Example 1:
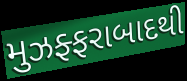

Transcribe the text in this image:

મુઝફ્ફરાબાદથી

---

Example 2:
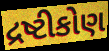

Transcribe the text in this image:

દ્રષ્ટીકોણ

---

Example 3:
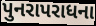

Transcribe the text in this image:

પુનરાપરાધના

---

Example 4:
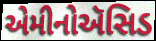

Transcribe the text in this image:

એમીનોઍસિડ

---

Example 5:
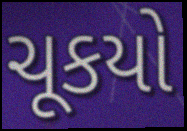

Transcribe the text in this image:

ચૂકયો